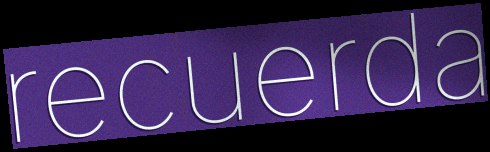
recuerda